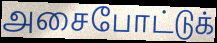
அசைபோட்டுக்